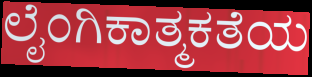
ಲೈಂಗಿಕಾತ್ಮಕತೆಯ